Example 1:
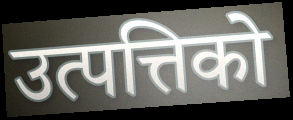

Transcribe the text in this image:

उत्पत्तिको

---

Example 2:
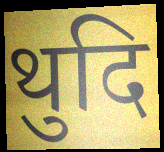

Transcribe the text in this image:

थुदि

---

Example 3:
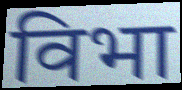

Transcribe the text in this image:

विभा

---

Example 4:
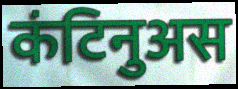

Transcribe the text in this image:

कंटिनुअस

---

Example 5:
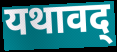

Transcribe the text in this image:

यथावद्